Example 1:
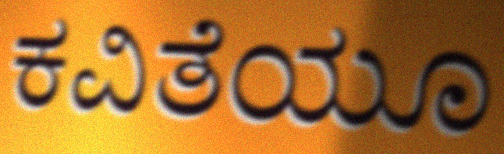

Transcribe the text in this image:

ಕವಿತೆಯೂ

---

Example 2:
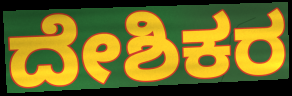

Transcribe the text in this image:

ದೇಶಿಕರ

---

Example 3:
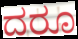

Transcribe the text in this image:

ದರೂ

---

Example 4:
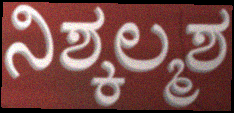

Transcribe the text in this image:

ನಿಶ್ಕಲ್ಮಶ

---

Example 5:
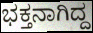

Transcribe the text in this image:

ಭಕ್ತನಾಗಿದ್ದ